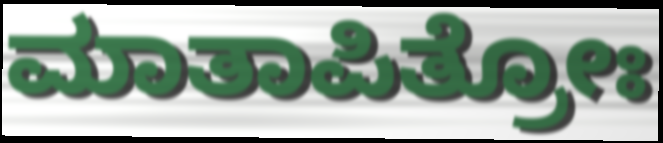
ಮಾತಾಪಿತ್ರೋಃ